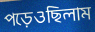
পড়েওছিলাম